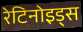
रेटिनोइड्स